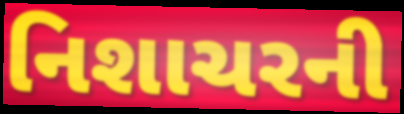
નિશાચરની